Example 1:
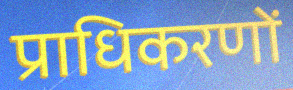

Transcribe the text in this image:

प्राधिकरणों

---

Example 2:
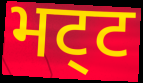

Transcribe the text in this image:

भट्‌ट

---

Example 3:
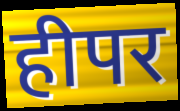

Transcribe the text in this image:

हीपर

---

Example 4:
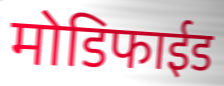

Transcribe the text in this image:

मोडिफाईड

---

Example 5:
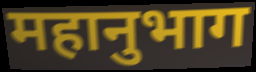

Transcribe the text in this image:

महानुभाग